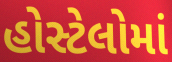
હોસ્ટેલોમાં